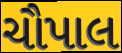
ચૌપાલ